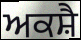
ਅਕਸ਼ੈ